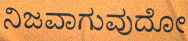
ನಿಜವಾಗುವುದೋ